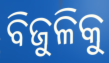
ବିଜୁଳିକୁ